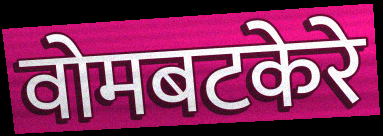
वोमबटकेरे